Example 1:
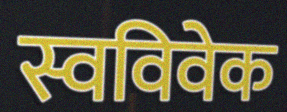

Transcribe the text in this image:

स्वविवेक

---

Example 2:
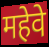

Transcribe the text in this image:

महेवे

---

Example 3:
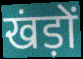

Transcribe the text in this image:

खंड़ों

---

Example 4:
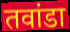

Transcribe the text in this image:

तवांडा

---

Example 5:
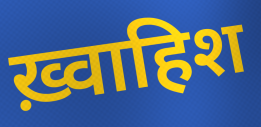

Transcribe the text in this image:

ख़्वाहिश